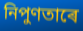
নিপুণতাৰে